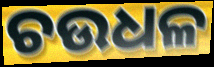
ଚଉଧଳ